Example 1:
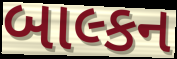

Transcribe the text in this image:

બાલ્કન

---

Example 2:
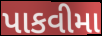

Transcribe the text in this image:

પાકવીમા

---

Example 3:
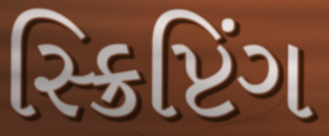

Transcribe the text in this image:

સ્ક્રિપ્ટિંગ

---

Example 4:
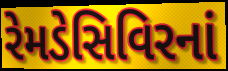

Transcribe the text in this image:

રેમડેસિવિરનાં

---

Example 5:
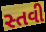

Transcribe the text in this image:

સ્તવી